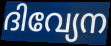
ദിവ്യേന